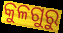
କୁଳଗୁରୁ